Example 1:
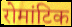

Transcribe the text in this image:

रोमांटिक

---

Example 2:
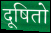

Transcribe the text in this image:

दूषितो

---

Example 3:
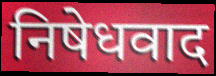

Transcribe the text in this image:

निषेधवाद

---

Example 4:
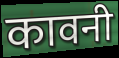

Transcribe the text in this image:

कावनी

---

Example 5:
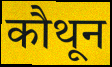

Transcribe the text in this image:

कौथून